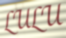
LULU